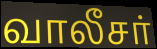
வாலீசர்